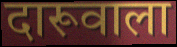
दारूवाला